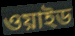
ওয়াইড